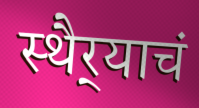
स्थैर्याचं